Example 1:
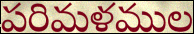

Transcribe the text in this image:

పరిమళముల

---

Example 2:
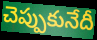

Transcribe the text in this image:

చెప్పుకునేదీ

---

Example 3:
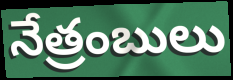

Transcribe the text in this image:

నేత్రంబులు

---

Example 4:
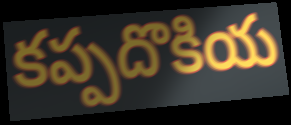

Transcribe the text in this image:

కప్పదొకియ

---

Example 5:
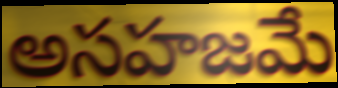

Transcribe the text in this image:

అసహజమే